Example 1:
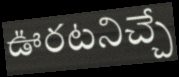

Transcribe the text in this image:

ఊరటనిచ్చే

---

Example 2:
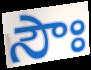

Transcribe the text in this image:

సౌః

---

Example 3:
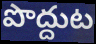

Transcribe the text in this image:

పొద్దుట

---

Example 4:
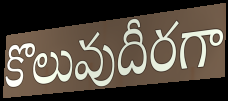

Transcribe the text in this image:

కొలువుదీరగా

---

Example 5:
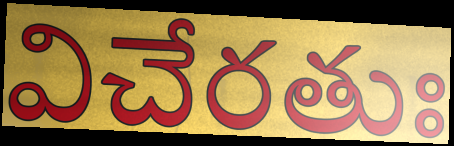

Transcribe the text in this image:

విచేరతుః